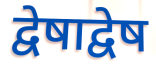
द्वेषाद्वेष